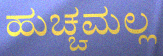
ಹುಚ್ಚಮಲ್ಲ